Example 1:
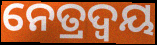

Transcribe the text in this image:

ନେତ୍ରଦ୍ଵୟ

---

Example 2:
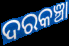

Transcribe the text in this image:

ଦରକଞ୍ଚା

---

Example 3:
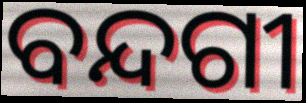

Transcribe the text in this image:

ବନ୍ଦଗୀ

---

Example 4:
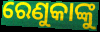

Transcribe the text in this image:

ରେଣୁକାଙ୍କୁ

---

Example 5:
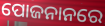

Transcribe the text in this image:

ପୋଜନାନରେ